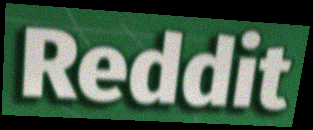
Reddit